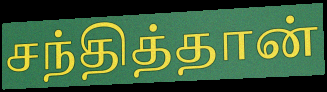
சந்தித்தான்